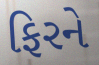
ફિરને